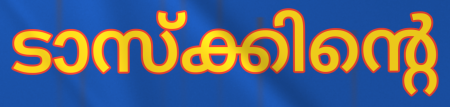
ടാസ്ക്കിന്റെ